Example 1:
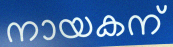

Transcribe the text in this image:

നായകന്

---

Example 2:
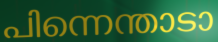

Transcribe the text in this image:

പിന്നെന്താടാ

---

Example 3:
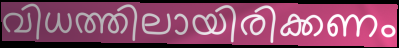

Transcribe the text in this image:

വിധത്തിലായിരിക്കണം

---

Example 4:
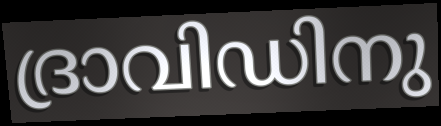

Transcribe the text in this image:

ദ്രാവിഡിനു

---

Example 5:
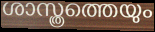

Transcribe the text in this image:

ശാസ്ത്രത്തെയും